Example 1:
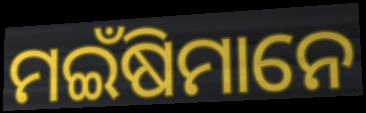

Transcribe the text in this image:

ମଇଁଷିମାନେ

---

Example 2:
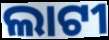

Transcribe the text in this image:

ଲାଟୀ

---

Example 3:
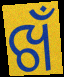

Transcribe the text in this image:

ଖଁ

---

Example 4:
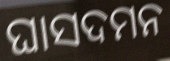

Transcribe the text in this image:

ଘାସଦମନ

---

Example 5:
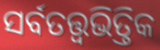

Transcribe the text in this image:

ସର୍ବତତ୍ତ୍ୱଭିତ୍ତିକ